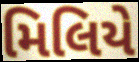
મિલિયે